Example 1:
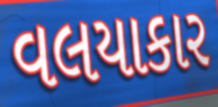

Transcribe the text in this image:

વલયાકાર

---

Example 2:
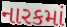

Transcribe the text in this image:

નારકમાં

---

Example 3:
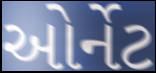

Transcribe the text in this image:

ઓર્નેટ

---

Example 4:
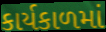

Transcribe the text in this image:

કાર્યકાળમાં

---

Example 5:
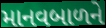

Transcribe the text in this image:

માનવબાળને